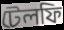
টেলফি